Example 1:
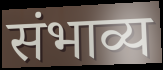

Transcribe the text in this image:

संभाव्य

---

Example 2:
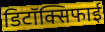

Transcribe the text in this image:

डिटॉक्सिफाई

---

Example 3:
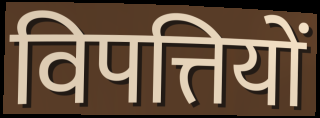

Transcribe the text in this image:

विपत्तियों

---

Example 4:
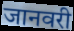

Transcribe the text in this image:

जानवरी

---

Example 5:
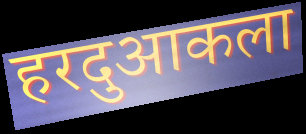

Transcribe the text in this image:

हरदुआकला